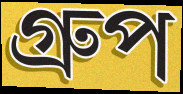
গ্রুপ